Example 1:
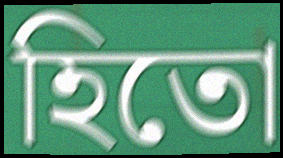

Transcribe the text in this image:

হিতো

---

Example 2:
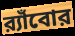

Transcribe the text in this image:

র‍্যাঁবোর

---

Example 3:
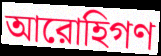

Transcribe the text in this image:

আরোহিগণ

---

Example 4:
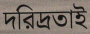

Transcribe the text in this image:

দরিদ্রতাই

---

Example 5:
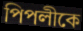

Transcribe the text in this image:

পিপলীকে